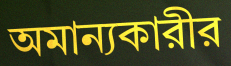
অমান্যকারীর